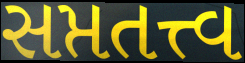
સપ્તતત્ત્વ